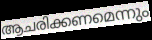
ആചരിക്കണമെന്നും